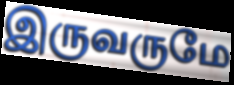
இருவருமே